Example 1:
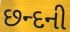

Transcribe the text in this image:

છન્દની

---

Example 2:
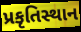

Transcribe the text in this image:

પ્રકૃતિસ્થાન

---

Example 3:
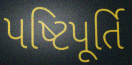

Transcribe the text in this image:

પષ્ટિપૂર્તિ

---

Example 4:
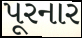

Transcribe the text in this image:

પૂરનાર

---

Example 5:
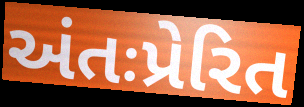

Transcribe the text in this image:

અંતઃપ્રેરિત